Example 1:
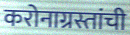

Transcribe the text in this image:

करोनाग्रस्तांची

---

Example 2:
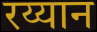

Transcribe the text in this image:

रय्यान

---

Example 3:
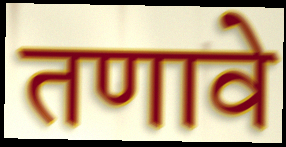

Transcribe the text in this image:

तणावे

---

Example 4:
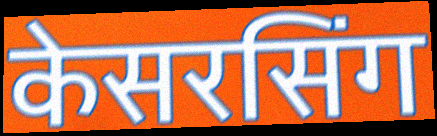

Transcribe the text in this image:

केसरसिंग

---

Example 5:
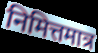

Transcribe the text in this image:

निमित्तमात्र